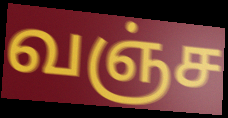
வஞ்ச